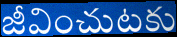
జీవించుటకు